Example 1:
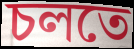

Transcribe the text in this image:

চলতে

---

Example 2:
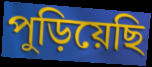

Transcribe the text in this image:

পুড়িয়েছি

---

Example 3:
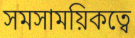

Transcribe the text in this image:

সমসাময়িকত্বে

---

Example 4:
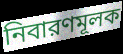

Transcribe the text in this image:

নিবারণমূলক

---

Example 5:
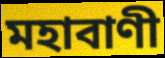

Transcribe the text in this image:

মহাবাণী